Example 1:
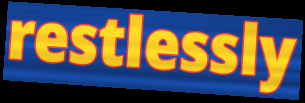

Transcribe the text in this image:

restlessly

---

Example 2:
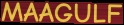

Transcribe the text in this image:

MAAGULF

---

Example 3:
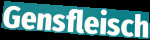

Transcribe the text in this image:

Gensfleisch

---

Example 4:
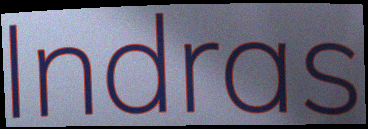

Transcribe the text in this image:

Indras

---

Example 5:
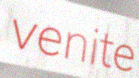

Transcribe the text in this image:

venite